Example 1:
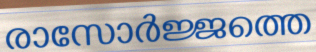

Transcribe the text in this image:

രാസോർജ്ജത്തെ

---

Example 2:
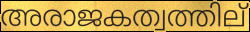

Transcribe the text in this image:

അരാജകത്വത്തില്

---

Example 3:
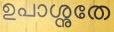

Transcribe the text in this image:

ഉപാശ്നുതേ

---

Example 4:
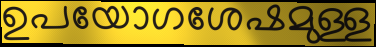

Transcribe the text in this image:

ഉപയോഗശേഷമുള്ള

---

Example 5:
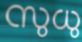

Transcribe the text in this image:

സുധു